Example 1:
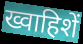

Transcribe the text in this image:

ख्वाहिशें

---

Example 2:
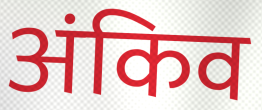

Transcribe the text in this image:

अंकिव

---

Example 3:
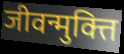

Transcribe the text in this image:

जीवन्मुक्ति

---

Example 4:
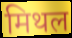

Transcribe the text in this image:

मिथल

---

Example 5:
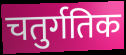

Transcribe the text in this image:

चतुर्गतिक